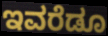
ಇವರೆಡೂ